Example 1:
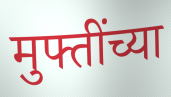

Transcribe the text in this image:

मुफ्तींच्या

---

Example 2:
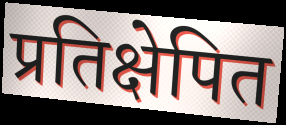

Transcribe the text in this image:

प्रतिक्षेपित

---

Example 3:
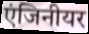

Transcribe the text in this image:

एंजिनीयर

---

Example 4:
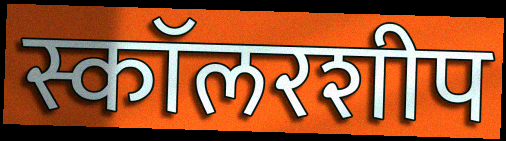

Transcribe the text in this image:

स्कॉलरशीप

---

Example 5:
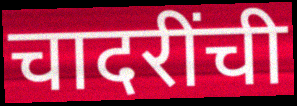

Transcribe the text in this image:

चादरींची